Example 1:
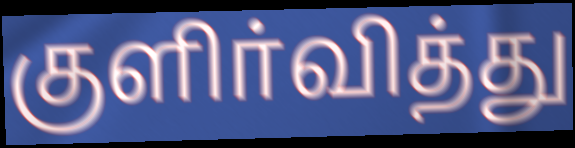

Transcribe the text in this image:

குளிர்வித்து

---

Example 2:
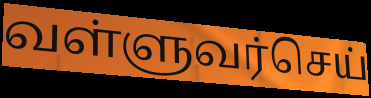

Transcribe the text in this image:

வள்ளுவர்செய்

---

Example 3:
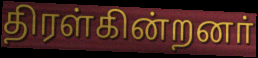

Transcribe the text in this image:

திரள்கின்றனர்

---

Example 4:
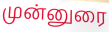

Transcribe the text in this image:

முன்னுரை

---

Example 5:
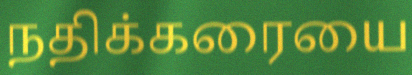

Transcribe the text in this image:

நதிக்கரையை